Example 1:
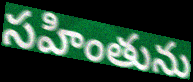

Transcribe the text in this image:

సహింతును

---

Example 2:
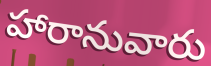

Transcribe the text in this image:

హారానువారు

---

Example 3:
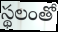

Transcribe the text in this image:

స్థలంతో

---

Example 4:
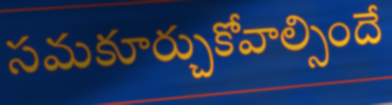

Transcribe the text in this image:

సమకూర్చుకోవాల్సిందే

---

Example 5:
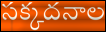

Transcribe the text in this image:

సక్కదనాల